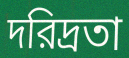
দরিদ্রতা